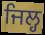
ਜਿਲ੍ਹ